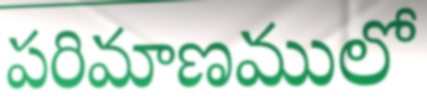
పరిమాణములో